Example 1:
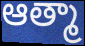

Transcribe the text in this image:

ఆత్మా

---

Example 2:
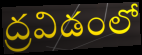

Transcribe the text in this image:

ద్రవిడంలో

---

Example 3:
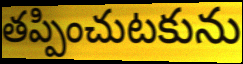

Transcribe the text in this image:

తప్పించుటకును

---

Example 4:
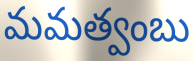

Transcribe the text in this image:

మమత్వంబు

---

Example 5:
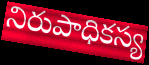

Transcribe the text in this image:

నిరుపాధికస్య